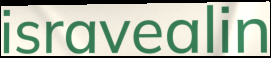
isravealin